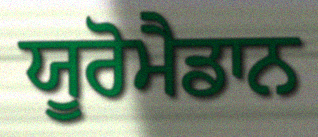
ਯੂਰੋਮੈਡਾਨ